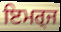
ਇਮਰ੍ਜ